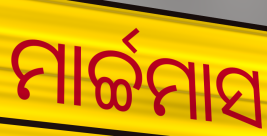
ମାର୍ଚ୍ଚମାସ